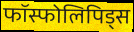
फॉस्फोलिपिड्स